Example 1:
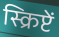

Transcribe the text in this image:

स्क्रिप्टें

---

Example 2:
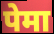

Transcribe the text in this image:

पेमा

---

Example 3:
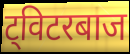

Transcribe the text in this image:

ट्विटरबाज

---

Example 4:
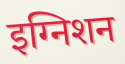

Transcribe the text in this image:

इग्निशन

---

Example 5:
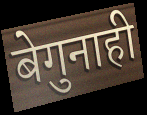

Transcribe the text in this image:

बेगुनाही